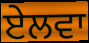
ਏਲਵਾ